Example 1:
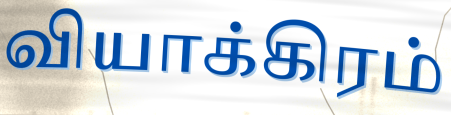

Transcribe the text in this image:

வியாக்கிரம்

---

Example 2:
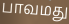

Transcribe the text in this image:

பாவமது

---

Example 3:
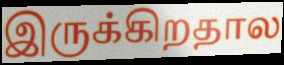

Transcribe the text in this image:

இருக்கிறதால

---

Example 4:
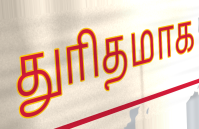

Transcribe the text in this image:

துரிதமாக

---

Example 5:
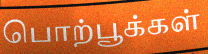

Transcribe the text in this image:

பொற்பூக்கள்